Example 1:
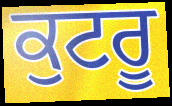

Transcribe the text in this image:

ਕੁਟਰੂ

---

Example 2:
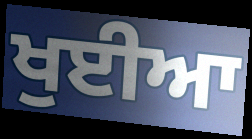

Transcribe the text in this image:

ਖੁਈਆ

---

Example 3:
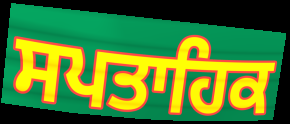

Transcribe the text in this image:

ਸਪਤਾਹਿਕ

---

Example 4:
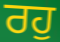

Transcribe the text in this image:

ਰਹੁ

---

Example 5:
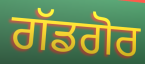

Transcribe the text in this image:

ਗੱਡਗੋਰ